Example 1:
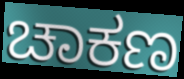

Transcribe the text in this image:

ಚಾಕಣ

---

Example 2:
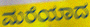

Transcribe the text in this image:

ಮರೆಯಾದ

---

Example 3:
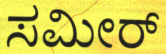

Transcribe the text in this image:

ಸಮೀರ್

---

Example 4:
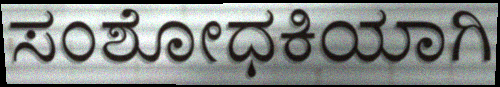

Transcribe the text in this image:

ಸಂಶೋಧಕಿಯಾಗಿ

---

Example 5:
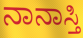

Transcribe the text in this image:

ನಾನಾಸ್ತಿ